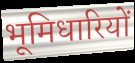
भूमिधारियों